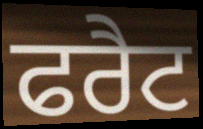
ਫਰੈਟ